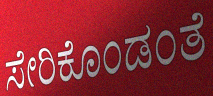
ಸೇರಿಕೊಂಡಂತೆ